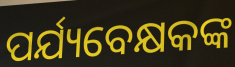
ପର୍ଯ୍ୟବେକ୍ଷକଙ୍କ